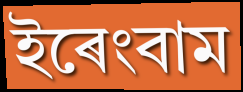
ইৰেংবাম